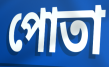
পোতা